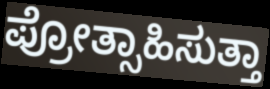
ಪ್ರೋತ್ಸಾಹಿಸುತ್ತಾ